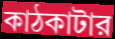
কাঠকাটার